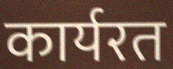
कार्यरत